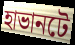
হাভানটে